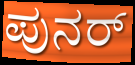
ಪುನರ್